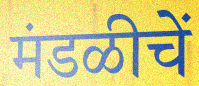
मंडळीचें